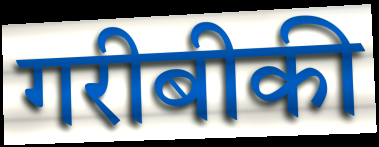
गरीबीकी